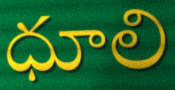
ధూలి